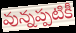
వున్నప్పటికీ